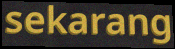
sekarang